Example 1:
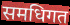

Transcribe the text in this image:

समधिगत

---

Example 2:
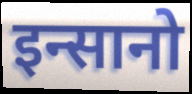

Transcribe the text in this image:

इन्सानो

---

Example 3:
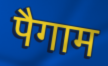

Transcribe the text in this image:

पैगाम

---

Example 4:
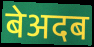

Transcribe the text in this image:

बेअदब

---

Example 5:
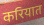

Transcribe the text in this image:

करियात